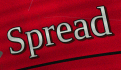
Spread